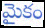
మైకం